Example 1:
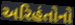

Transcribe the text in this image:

અરિહંતોનો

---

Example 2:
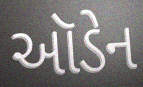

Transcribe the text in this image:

ઑડેન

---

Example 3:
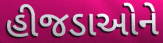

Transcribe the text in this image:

હીજડાઓને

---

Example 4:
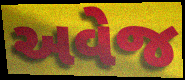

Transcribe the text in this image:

અવેજ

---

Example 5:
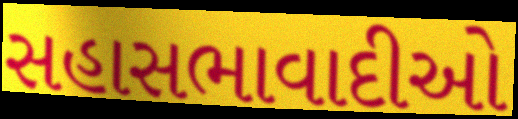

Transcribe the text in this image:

સહાસભાવાદીઓ